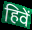
हिवें